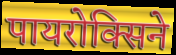
पायरोक्सिने